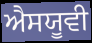
ਐਸਯੂਵੀ